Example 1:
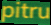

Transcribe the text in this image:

pitru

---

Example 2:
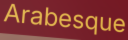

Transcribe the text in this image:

Arabesque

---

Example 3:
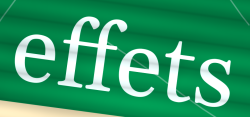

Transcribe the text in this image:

effets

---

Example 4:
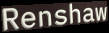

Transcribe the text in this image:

Renshaw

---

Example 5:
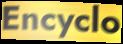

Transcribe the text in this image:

Encyclo